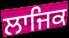
ਲਾਜਿਕ